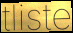
tliste